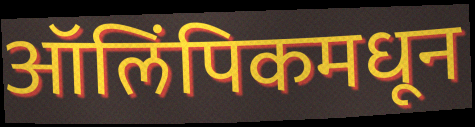
ऑलिंपिकमधून